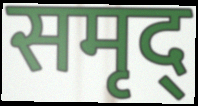
समृद्